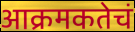
आक्रमकतेचं